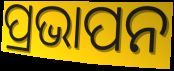
ପ୍ରଭାପନ